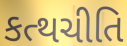
કત્થચીતિ